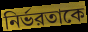
নির্ভরতাকে